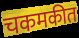
चकमकीत